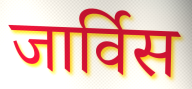
जार्विस